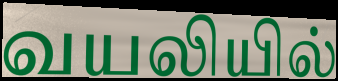
வயலியில்